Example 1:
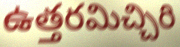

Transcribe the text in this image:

ఉత్తరమిచ్చిరి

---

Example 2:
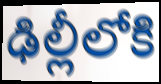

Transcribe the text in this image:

ఢిల్లీలోకి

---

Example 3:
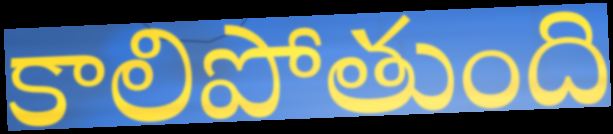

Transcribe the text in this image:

కాలిపోతుంది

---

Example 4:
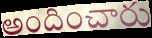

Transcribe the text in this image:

అందించారు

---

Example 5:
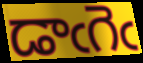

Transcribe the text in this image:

డాఁగెఁ